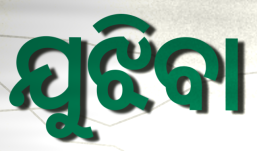
ଯୁଝିବା